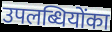
उपलब्धियोंका